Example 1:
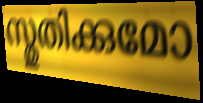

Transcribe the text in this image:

സ്തുതിക്കുമോ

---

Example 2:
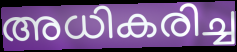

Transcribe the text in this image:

അധികരിച്ച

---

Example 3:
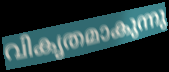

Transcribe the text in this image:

വികൃതമാകുന്നു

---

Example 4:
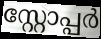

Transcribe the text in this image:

സ്റ്റോപ്പർ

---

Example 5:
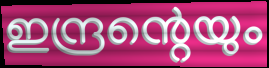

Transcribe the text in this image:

ഇന്ദ്രന്റെയും